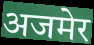
अजमेर